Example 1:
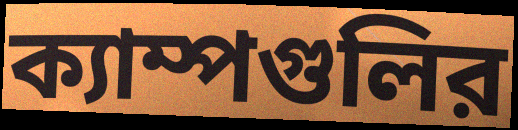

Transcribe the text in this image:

ক্যাম্পগুলির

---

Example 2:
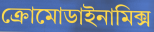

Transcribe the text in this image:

ক্রোমোডাইনামিক্স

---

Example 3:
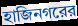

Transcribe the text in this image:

হাজিনগরের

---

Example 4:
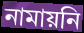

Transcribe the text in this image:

নামায়নি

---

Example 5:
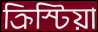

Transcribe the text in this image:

ক্রিস্টিয়া